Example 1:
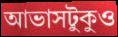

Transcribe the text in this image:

আভাসটুকুও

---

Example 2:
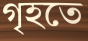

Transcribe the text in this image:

গৃহতে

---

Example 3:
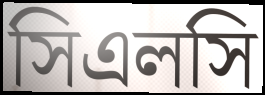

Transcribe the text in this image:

সিএলসি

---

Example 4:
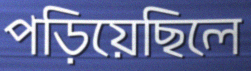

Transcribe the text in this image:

পড়িয়েছিলে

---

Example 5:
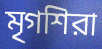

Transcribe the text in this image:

মৃগশিরা